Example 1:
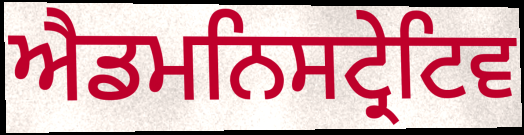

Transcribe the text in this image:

ਐਡਮਨਿਸਟ੍ਰੇਟਿਵ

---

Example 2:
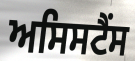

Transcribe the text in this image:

ਅਸਿਸਟੈਂਸ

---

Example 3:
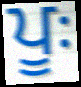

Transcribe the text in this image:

ਪੂਃ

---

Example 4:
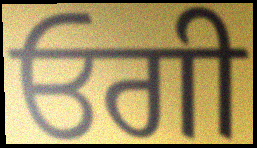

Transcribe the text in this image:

ਓਗੀ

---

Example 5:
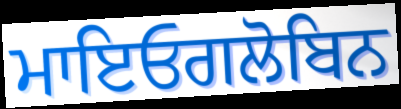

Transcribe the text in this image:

ਮਾਇਓਗਲੋਬਿਨ